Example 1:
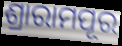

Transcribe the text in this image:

ଶ୍ରାରାମପୂର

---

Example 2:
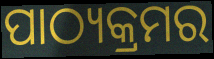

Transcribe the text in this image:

ପାଠ୍ୟକ୍ରମର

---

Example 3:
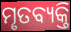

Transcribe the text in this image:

ମୃତବ୍ୟକ୍ତି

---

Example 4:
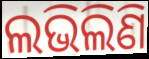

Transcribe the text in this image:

ଲଭିଲିଣି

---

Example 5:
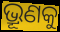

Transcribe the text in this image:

ଭ୍ରୂଣକୁ